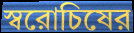
স্বরোচিষের